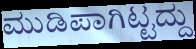
ಮುಡಿಪಾಗಿಟ್ಟದ್ದು